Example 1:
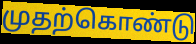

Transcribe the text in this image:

முதற்கொண்டு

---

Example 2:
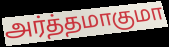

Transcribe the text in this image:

அர்த்தமாகுமா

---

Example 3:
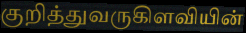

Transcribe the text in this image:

குறித்துவருகிளவியின்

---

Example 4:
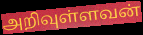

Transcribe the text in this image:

அறிவுள்ளவன்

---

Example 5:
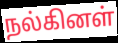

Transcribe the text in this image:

நல்கினள்